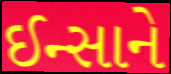
ઈન્સાને